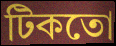
টিকতো